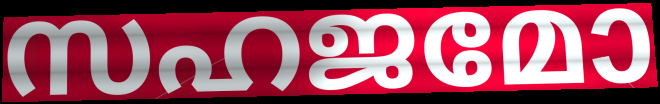
സഹജമോ